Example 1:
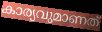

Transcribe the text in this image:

കാര്യവുമാണത്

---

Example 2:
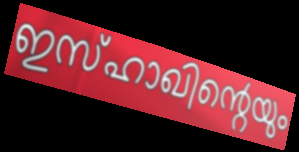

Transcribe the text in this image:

ഇസ്ഹാഖിന്റെയും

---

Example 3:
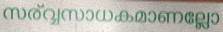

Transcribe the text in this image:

സര്വ്വസാധകമാണല്ലോ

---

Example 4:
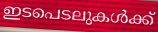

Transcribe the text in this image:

ഇടപെടലുകൾക്ക്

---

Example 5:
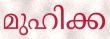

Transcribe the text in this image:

മുഹിക്ക